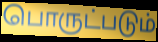
பொருட்படும்